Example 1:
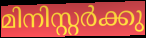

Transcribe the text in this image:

മിനിസ്റ്റർക്കു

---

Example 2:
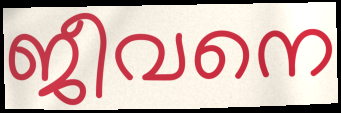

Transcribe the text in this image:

ജീവനെ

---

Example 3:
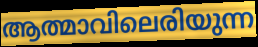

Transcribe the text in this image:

ആത്മാവിലെരിയുന്ന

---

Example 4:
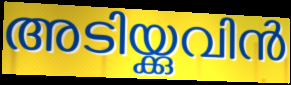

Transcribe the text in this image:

അടിയ്ക്കുവിൻ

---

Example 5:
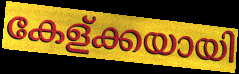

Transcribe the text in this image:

കേള്ക്കയായി